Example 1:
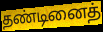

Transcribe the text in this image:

தண்டினைத்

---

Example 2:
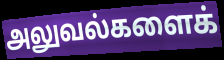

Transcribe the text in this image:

அலுவல்களைக்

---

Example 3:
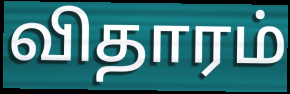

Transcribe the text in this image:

விதாரம்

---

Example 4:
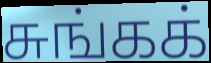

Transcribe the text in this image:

சுங்கக்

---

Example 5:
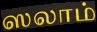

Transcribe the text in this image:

ஸலாம்